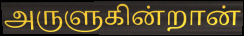
அருளுகின்றான்